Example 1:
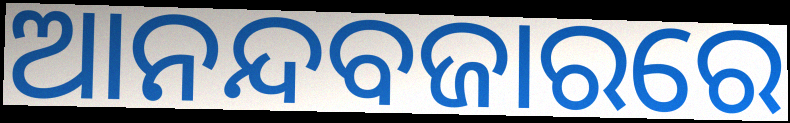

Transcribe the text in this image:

ଆନନ୍ଦବଜାରରେ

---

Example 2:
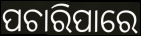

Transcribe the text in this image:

ପଚାରିପାରେ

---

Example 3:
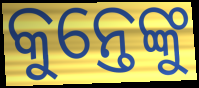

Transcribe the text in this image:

କୁନ୍ତେଙ୍କୁ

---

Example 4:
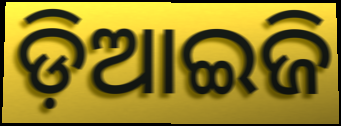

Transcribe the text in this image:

ଡ଼ିଆଇଜି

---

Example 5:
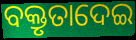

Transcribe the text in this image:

ବକ୍ତୃତାଦେଇ